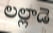
లల్లాడె